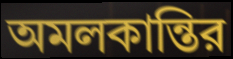
অমলকান্তির